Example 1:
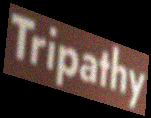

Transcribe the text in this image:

Tripathy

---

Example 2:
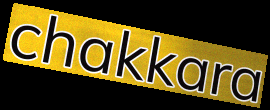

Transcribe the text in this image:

chakkara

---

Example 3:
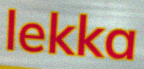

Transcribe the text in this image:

lekka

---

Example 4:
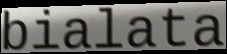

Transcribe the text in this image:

bialata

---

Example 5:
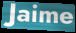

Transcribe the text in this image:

Jaime